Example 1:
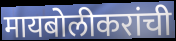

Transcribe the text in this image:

मायबोलीकरांची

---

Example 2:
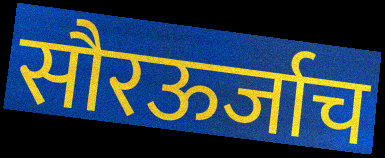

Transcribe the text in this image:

सौरऊर्जाच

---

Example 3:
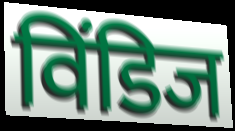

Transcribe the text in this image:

विंडिज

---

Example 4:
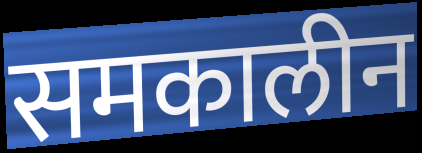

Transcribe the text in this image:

समकालीन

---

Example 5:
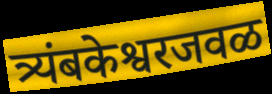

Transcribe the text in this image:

त्र्यंबकेश्वरजवळ